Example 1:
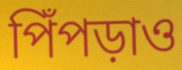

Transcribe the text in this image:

পিঁপড়াও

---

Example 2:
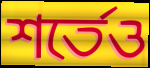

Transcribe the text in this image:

শর্তেও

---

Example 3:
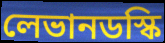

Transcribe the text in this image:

লেভানডস্কি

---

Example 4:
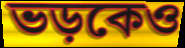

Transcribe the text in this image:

ভড়কেও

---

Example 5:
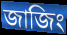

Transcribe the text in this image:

জাজিং